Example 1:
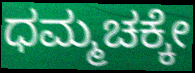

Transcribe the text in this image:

ಧಮ್ಮಚಕ್ಕೇ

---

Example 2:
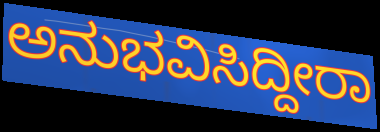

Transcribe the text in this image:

ಅನುಭವಿಸಿದ್ದೀರಾ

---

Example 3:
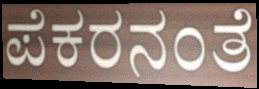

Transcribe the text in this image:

ಪೆಕರನಂತೆ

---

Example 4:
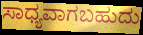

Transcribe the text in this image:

ಸಾಧ್ಯವಾಗಬಹುದು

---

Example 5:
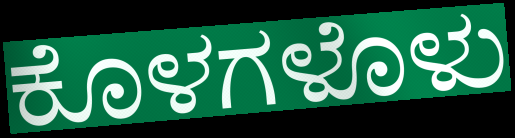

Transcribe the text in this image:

ಕೊಳಗಳೊಳು